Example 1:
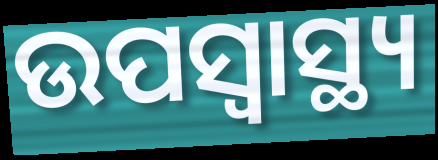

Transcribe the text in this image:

ଉପସ୍ୱାସ୍ଥ୍ୟ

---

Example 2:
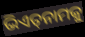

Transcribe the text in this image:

ଭିଏତ୍‌ନାମକୁ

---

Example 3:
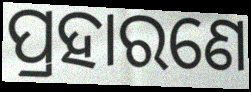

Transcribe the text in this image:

ପ୍ରହାରଣେ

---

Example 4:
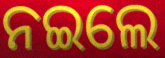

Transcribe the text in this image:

ନଇଲେ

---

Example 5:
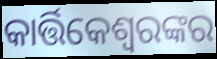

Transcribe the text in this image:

କାର୍ତ୍ତିକେଶ୍ୱରଙ୍କର